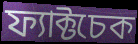
ফ্যাক্টচেক